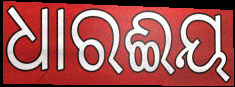
ଧାରଈୟ